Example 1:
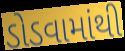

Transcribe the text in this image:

ડોડવામાંથી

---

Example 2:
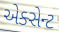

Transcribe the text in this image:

એક્સેન્ટ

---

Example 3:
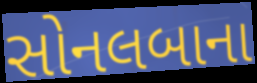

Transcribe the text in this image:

સોનલબાના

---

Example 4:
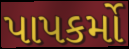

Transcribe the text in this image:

પાપકર્મો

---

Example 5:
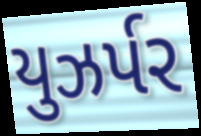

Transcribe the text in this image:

યુઝર્પર